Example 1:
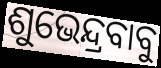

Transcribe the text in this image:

ଶୁଭେନ୍ଦ୍ରବାବୁ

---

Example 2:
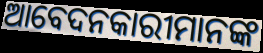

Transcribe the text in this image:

ଆବେଦନକାରୀମାନଙ୍କ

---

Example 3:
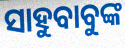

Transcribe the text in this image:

ସାହୁବାବୁଙ୍କ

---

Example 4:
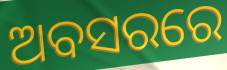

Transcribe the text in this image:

ଅବସରରେ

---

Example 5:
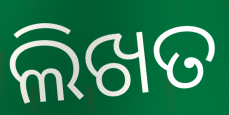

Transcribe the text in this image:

ଲିଖତ